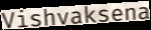
Vishvaksena